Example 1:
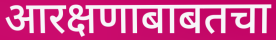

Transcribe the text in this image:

आरक्षणाबाबतचा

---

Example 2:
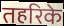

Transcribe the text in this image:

तहरिके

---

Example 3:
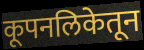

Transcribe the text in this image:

कूपनलिकेतून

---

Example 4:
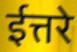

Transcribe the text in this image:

ईत्तरे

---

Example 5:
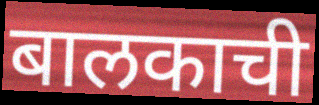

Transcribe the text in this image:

बालकाची